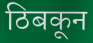
ठिबकून